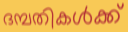
ദമ്പതികൾക്ക്